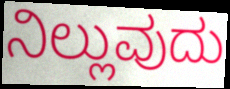
ನಿಲ್ಲುವುದು